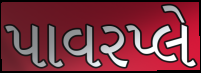
પાવરપ્લે